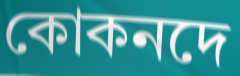
কোকনদে